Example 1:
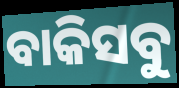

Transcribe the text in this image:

ବାକିସବୁ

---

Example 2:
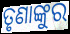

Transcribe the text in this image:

ତୃଣାଙ୍କୁର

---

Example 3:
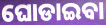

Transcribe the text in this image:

ଘୋଡାଇବା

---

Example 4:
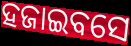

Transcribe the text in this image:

ହଜାଇବସେ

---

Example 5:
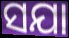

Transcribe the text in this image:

ସଯା